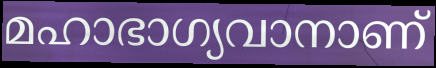
മഹാഭാഗ്യവാനാണ്